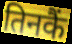
तिनकैं